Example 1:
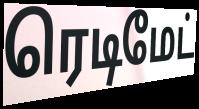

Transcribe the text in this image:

ரெடிமேட்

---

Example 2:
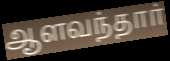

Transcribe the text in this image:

ஆளவந்தார்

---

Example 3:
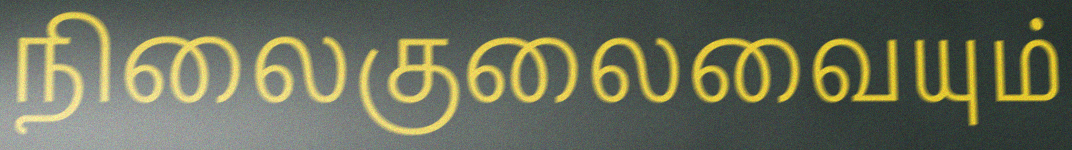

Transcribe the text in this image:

நிலைகுலைவையும்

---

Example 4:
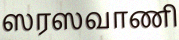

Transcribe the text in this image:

ஸரஸவாணி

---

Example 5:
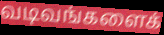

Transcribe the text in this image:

வடிவங்களைக்